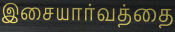
இசையார்வத்தை